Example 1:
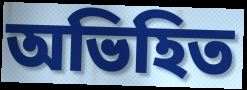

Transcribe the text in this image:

অভিহিত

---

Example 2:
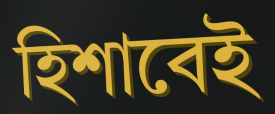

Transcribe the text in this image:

হিশাবেই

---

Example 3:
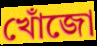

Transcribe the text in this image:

খোঁজো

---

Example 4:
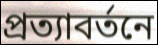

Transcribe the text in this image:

প্রত্যাবর্তনে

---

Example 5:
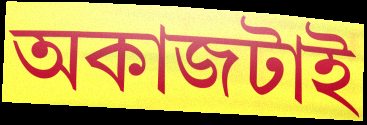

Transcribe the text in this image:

অকাজটাই